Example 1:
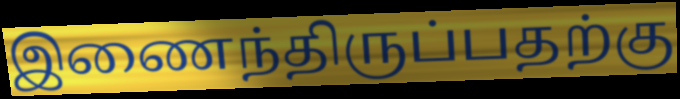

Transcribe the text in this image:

இணைந்திருப்பதற்கு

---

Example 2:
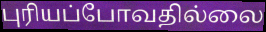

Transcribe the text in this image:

புரியப்போவதில்லை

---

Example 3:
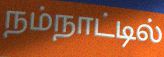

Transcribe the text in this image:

நம்நாட்டில்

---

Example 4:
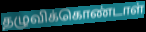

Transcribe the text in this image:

தழுவிக்கொண்டாள்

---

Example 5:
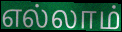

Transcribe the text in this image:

எல்லாம்